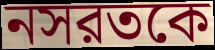
নসরতকে